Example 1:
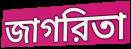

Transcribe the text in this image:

জাগরিতা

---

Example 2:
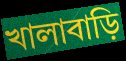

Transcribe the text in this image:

খালাবাড়ি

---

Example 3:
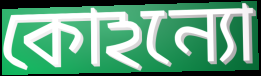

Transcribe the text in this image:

কোঽন্যো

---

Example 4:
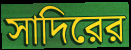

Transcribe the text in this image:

সাদিরের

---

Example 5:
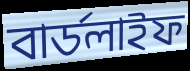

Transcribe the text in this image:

বার্ডলাইফ